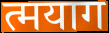
त्मयाग